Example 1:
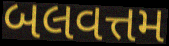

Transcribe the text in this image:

બલવત્તમ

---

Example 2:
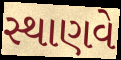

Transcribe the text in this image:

સ્થાણવે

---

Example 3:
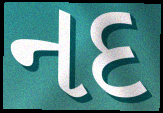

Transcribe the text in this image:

નદ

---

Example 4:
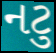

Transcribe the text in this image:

નટુ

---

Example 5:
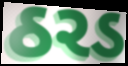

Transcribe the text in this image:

ઠરડ